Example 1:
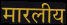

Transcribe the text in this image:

मारलीय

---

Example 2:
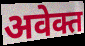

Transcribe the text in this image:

अवेक्त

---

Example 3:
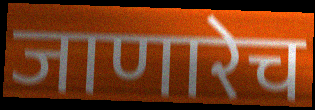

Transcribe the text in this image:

जाणारेच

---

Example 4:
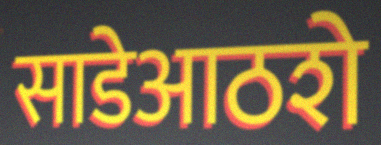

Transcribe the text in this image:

साडेआठशे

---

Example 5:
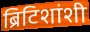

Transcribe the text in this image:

ब्रिटिशांशी